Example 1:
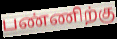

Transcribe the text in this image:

பண்ணிற்கு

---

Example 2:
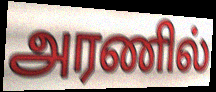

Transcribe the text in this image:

அரணில்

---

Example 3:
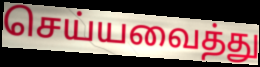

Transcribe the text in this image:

செய்யவைத்து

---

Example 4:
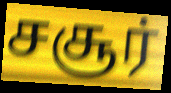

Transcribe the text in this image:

சசூர்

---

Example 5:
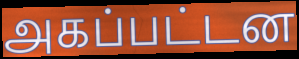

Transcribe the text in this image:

அகப்பட்டன